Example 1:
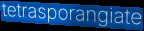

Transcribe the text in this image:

tetrasporangiate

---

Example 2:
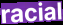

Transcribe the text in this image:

racial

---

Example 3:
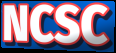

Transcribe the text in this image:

NCSC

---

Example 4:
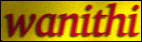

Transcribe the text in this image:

wanithi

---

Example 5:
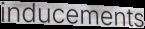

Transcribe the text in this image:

inducements